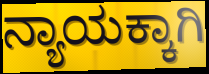
ನ್ಯಾಯಕ್ಕಾಗಿ